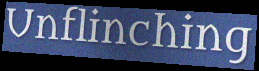
Unflinching